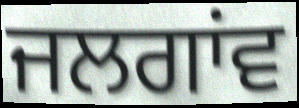
ਜਲਗਾਂਵ